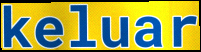
keluar